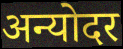
अन्योदर